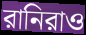
রানিরাও